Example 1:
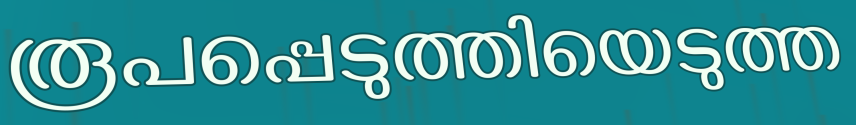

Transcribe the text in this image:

രൂപപ്പെടുത്തിയെടുത്ത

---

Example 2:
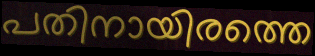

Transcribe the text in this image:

പതിനായിരത്തെ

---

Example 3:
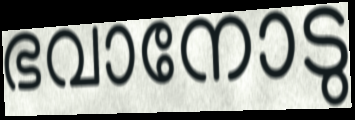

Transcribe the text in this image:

ഭവാനോടു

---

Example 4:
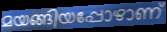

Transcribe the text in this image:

മയങ്ങിയപ്പോഴാണ്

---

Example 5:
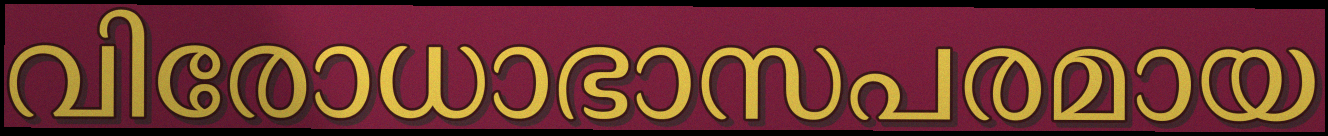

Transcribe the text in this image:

വിരോധാഭാസപരമായ